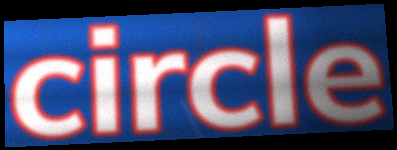
circle